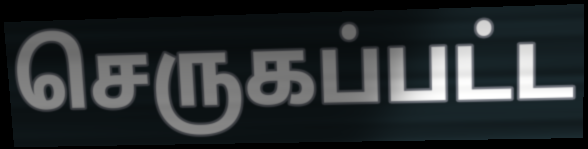
செருகப்பட்ட